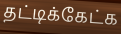
தட்டிக்கேட்க